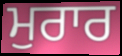
ਮੁਰਾਰ